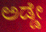
ಅಡ್ಡೇ